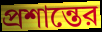
প্রশান্তের